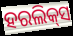
ହରଲିକ୍‍ସ